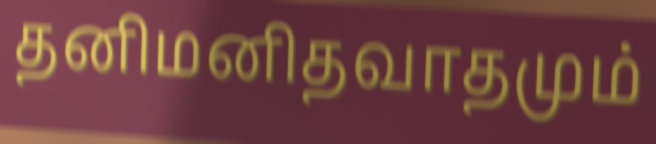
தனிமனிதவாதமும்